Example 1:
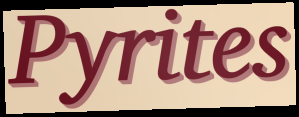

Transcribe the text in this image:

Pyrites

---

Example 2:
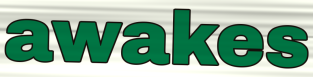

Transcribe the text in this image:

awakes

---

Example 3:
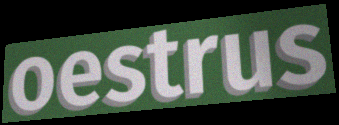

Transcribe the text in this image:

oestrus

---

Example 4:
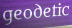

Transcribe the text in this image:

geodetic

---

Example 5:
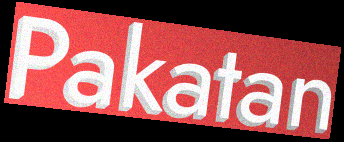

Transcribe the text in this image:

Pakatan